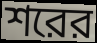
শরের